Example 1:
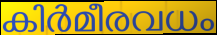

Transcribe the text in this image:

കിർമീരവധം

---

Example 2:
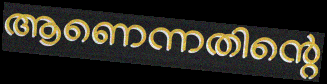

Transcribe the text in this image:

ആണെന്നതിന്റെ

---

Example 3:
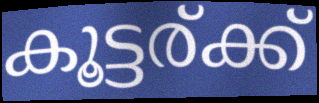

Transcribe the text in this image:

കൂട്ടര്ക്ക്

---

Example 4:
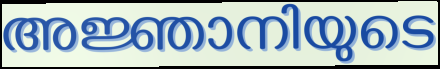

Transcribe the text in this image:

അജ്ഞാനിയുടെ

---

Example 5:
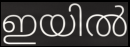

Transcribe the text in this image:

ഇയിൽ